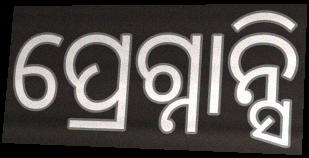
ପ୍ରେଗ୍ନାନ୍ସି